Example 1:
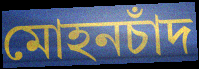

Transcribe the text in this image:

মোহনচাঁদ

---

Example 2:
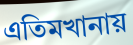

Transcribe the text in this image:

এতিমখানায়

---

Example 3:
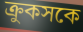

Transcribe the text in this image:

ক্রুকসকে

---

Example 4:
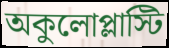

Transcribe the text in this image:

অকুলোপ্লাস্টি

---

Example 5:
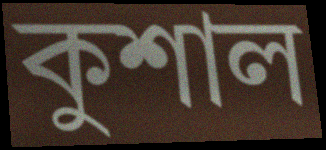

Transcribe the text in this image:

কুশাল